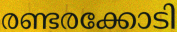
രണ്ടരക്കോടി